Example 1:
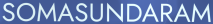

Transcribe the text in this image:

SOMASUNDARAM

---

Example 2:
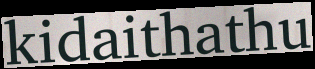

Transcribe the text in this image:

kidaithathu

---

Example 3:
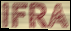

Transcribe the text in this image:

IFRA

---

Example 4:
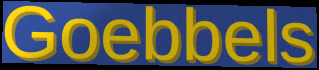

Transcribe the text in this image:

Goebbels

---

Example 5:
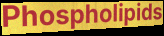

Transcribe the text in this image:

Phospholipids